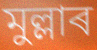
মুল্লাৰ